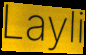
Layli